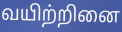
வயிற்றினை